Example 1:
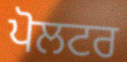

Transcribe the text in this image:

ਪੋਲਟਰ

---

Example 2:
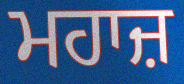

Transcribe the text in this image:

ਮਹਾਜ਼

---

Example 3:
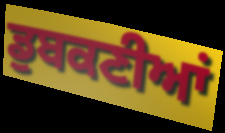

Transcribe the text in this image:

ਡੁਬਕਣੀਆਂ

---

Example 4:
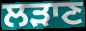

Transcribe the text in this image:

ਲੜਾਣ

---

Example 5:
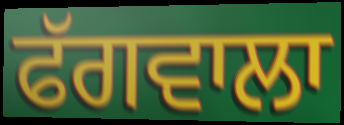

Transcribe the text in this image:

ਫੱਗਵਾਲਾ